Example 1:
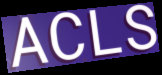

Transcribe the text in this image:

ACLS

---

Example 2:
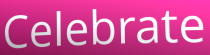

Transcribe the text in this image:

Celebrate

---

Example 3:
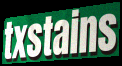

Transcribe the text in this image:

txstains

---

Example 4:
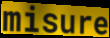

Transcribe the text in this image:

misure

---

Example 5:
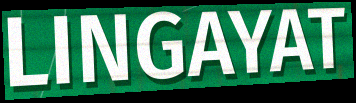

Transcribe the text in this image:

LINGAYAT